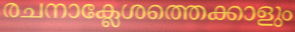
രചനാക്ലേശത്തെക്കാളും